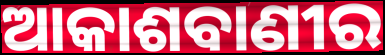
ଆକାଶବାଣୀର